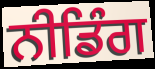
ਨੀਡਿੰਗ